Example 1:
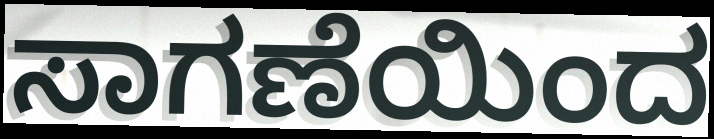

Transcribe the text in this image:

ಸಾಗಣೆಯಿಂದ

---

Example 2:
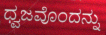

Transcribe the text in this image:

ಧ್ವಜವೊಂದನ್ನು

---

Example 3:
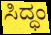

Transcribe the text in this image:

ಸಿದ್ಧಂ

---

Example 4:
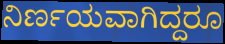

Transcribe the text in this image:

ನಿರ್ಣಯವಾಗಿದ್ದರೂ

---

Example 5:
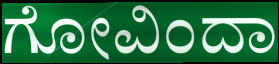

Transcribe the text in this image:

ಗೋವಿಂದಾ